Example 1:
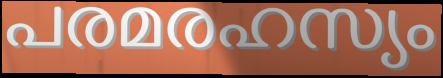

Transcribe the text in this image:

പരമരഹസ്യം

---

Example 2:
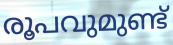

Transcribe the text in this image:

രൂപവുമുണ്ട്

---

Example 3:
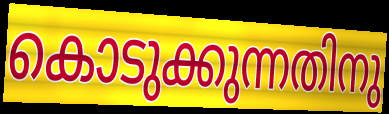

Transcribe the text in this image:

കൊടുക്കുന്നതിനു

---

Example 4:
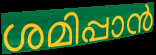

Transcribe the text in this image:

ശമിപ്പാൻ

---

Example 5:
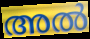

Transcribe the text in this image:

അൽ